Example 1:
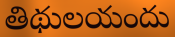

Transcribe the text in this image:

తిథులయందు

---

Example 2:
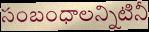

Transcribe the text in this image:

సంబంధాలన్నిటినీ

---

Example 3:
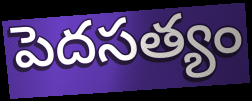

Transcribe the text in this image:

పెదసత్యం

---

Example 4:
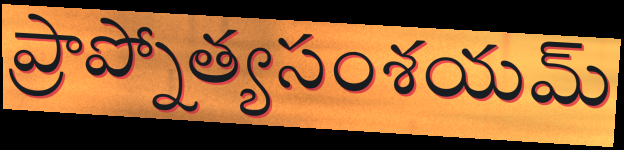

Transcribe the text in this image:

ప్రాప్నోత్యసంశయమ్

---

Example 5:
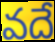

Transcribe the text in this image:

వదే